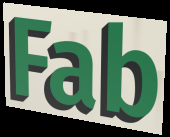
Fab